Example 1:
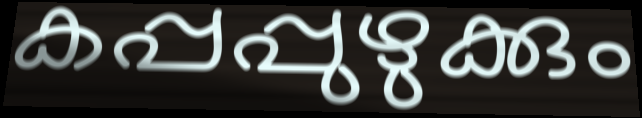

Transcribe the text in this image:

കപ്പപ്പുഴുക്കും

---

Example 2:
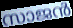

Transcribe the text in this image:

സാജൻ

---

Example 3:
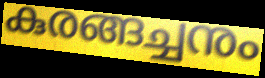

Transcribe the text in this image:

കുരങ്ങച്ചനും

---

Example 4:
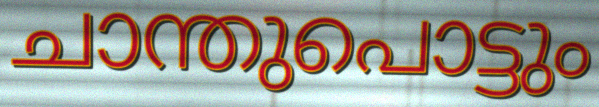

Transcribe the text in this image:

ചാന്തുപൊട്ടും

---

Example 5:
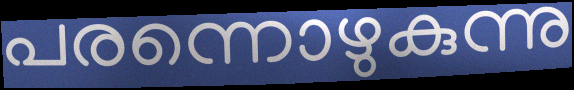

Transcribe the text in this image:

പരന്നൊഴുകുന്നു